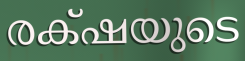
രക്‌ഷയുടെ